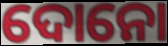
ଦୋନୋ